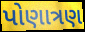
પોણાત્રણ